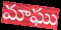
మాఘు